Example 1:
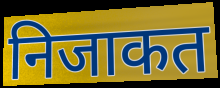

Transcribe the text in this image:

निजाकत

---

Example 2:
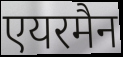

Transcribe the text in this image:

एयरमैन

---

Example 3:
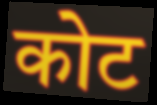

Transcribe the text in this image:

कोट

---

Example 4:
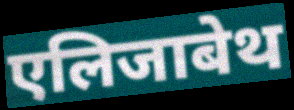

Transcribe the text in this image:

एलिजाबेथ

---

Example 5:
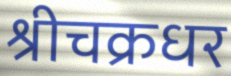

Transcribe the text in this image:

श्रीचक्रधर